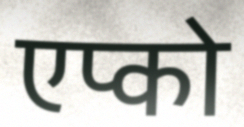
एप्को